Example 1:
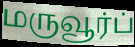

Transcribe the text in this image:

மருவூர்ப்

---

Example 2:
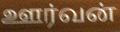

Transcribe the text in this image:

ஊர்வன்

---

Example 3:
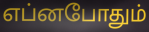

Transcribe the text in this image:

எப்னபோதும்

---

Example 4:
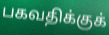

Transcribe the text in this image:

பகவதிக்குக்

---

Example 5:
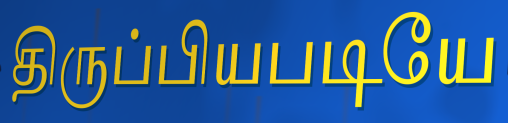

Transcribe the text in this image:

திருப்பியபடியே